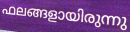
ഫലങ്ങളായിരുന്നു